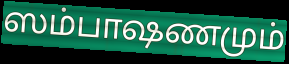
ஸம்பாஷணமும்